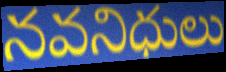
నవనిధులు